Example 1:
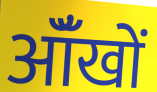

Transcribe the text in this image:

ऑँखों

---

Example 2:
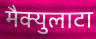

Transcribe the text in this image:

मैक्युलाटा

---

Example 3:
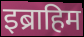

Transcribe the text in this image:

इब्राहिम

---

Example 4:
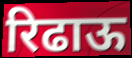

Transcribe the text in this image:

रिढाऊ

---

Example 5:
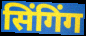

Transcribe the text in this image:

सिंगिंग